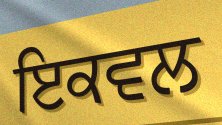
ਇਕਵਲ